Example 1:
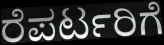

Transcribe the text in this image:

ರೆಪರ್ಟರಿಗೆ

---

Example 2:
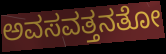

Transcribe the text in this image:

ಅವಸವತ್ತನತೋ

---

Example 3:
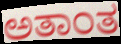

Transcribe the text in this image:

ಅತಾಂತ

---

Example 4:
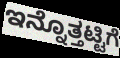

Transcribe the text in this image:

ಇನ್ನೊತ್ತಟ್ಟಿಗೆ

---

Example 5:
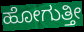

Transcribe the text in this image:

ಹೋಗುತ್ತೀ